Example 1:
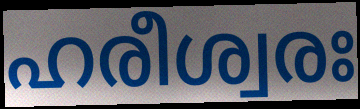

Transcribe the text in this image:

ഹരീശ്വരഃ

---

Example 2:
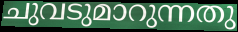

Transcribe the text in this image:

ചുവടുമാറുന്നതു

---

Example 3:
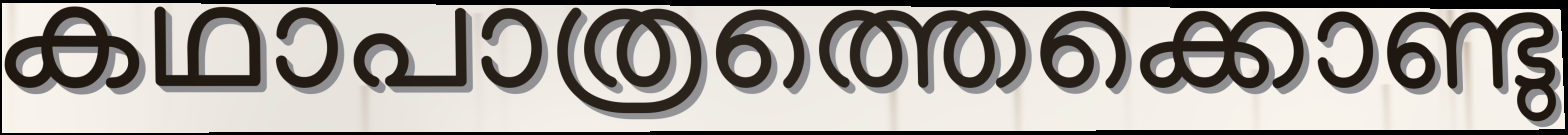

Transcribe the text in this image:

കഥാപാത്രത്തെക്കൊണ്ടു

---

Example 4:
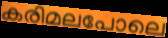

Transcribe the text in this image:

കരിമലപോലെ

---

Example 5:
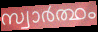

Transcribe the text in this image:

സ്വാർത്ഥം